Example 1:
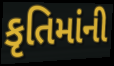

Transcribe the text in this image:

કૃતિમાંની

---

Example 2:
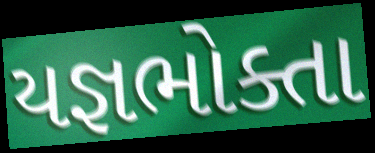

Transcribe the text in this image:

યજ્ઞભોક્તા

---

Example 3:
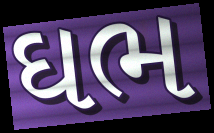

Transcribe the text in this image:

ઘભ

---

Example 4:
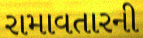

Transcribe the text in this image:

રામાવતારની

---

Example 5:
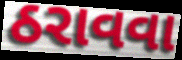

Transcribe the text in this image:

ઠરાવવા